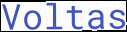
Voltas